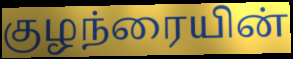
குழந்ரையின்